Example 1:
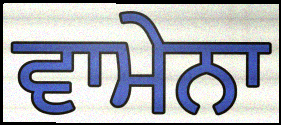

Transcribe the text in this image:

ਵਾਮੇਨਾ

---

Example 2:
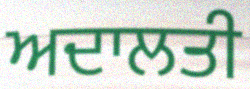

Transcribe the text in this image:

ਅਦਾਲਤੀ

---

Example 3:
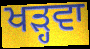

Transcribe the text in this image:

ਖੜ੍ਹਵਾ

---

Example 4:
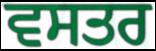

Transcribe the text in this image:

ਵਸਤਰ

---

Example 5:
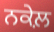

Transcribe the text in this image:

ਨਕੇਲ਼